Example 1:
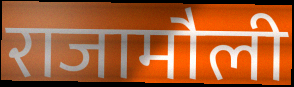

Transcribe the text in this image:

राजामौली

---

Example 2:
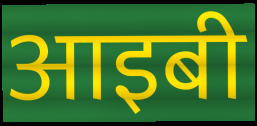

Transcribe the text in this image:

आइबी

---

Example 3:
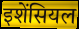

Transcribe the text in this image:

इशेंसियल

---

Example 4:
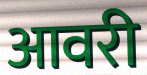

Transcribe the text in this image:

आवरी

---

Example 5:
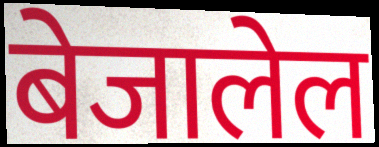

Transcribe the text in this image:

बेजालेल